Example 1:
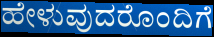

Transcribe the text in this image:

ಹೇಳುವುದರೊಂದಿಗೆ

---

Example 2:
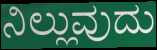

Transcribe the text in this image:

ನಿಲ್ಲುವುದು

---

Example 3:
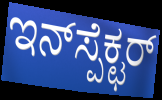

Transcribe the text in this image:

ಇನ್‌ಸ್ಪೆಕ್ಟರ್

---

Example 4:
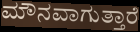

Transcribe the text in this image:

ಮೌನವಾಗುತ್ತಾರೆ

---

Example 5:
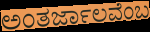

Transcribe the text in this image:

ಅಂತರ್ಜಾಲವೆಂಬ